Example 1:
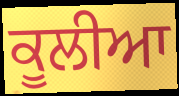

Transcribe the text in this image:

ਕੂਲੀਆ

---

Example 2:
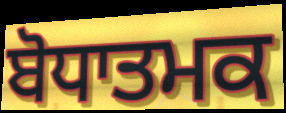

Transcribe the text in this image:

ਬੋਧਾਤਮਕ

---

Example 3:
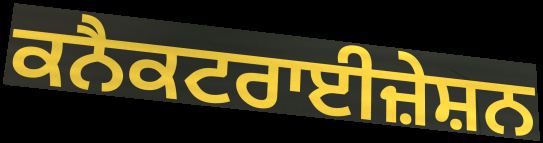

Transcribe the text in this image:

ਕਨੈਕਟਰਾਈਜ਼ੇਸ਼ਨ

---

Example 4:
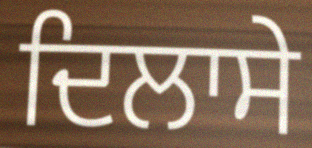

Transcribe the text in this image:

ਦਿਲਾਸੇ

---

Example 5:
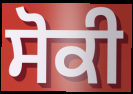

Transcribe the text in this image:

ਸੋਕੀ